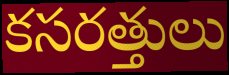
కసరత్తులు